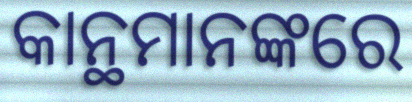
କାନ୍ଥମାନଙ୍କରେ